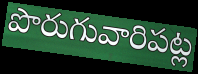
పొరుగువారిపట్ల